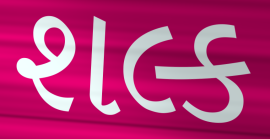
શલ્ક